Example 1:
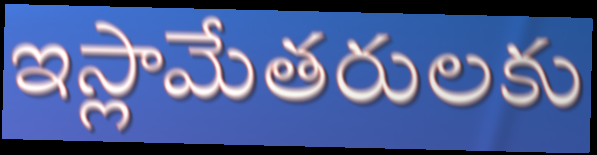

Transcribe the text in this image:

ఇస్లామేతరులకు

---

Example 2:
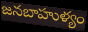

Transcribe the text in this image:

జనబాహుళ్యం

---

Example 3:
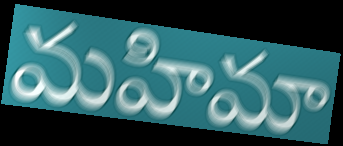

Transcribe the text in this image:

మహిమా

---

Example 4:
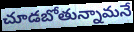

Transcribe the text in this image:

చూడబోతున్నామనే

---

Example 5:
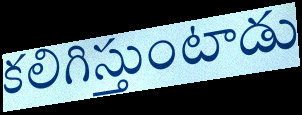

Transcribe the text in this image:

కలిగిస్తుంటాడు